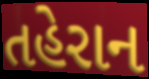
તહેરાન